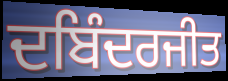
ਦਬਿੰਦਰਜੀਤ